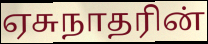
ஏசுநாதரின்